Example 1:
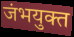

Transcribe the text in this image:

जंभयुक्त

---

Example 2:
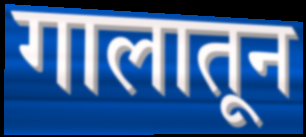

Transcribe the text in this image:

गालातून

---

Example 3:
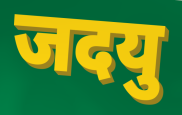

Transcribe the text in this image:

जदयु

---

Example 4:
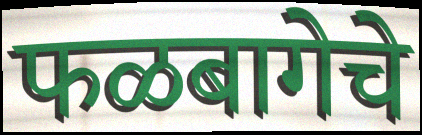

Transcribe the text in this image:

फळबागेचे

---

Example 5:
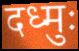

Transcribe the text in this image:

दध्मुः